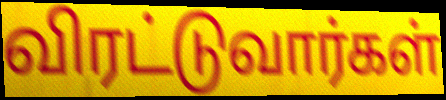
விரட்டுவார்கள்